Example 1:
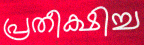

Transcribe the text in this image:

പ്രതീക്ഷിച്ച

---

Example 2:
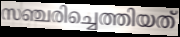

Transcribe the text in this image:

സഞ്ചരിച്ചെത്തിയത്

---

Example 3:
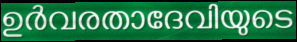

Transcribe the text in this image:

ഉർവരതാദേവിയുടെ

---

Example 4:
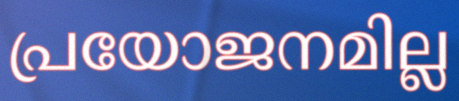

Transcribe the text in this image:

പ്രയോജനമില്ല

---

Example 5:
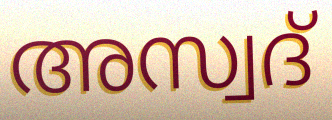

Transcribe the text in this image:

അസ്വദ്